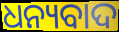
ଧନ୍ୟବାଦ